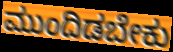
ಮುಂದಿಡಬೇಕು